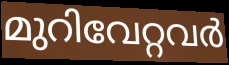
മുറിവേറ്റവർ